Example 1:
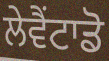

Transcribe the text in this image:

ਲੇਵੈਂਟਾਡੋ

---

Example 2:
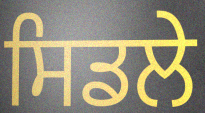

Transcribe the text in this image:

ਸਿਡਲੇ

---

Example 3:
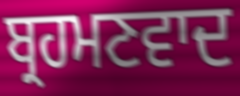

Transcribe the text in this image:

ਬ੍ਰਹਮਣਵਾਦ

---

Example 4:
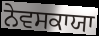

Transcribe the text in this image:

ਨੇਵਸਕਾਯਾ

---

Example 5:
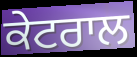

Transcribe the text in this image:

ਕੇਟਰਾਲ